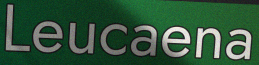
Leucaena